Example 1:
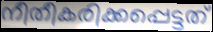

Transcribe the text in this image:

നീതീകരിക്കപ്പെട്ടത്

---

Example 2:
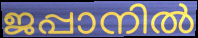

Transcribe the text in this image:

ജപ്പാനിൽ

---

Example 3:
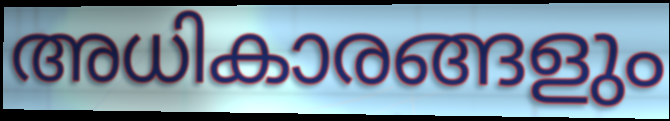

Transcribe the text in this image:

അധികാരങ്ങളും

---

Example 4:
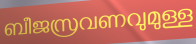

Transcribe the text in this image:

ബീജസ്രവണവുമുള്ള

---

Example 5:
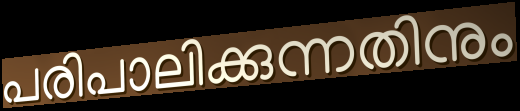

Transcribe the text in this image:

പരിപാലിക്കുന്നതിനും